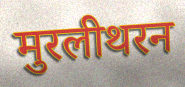
मुरलीथरन